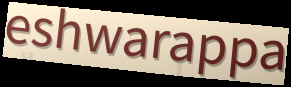
eshwarappa